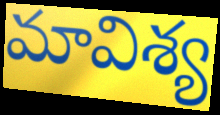
మావిశ్య